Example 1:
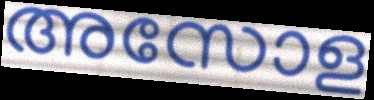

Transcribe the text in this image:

അസോള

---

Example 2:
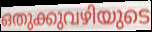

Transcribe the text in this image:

ഒതുക്കുവഴിയുടെ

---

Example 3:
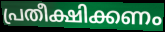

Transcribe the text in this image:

പ്രതീക്ഷിക്കണം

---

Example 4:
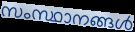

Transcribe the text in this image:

സംസ്ഥാനങ്ങൾ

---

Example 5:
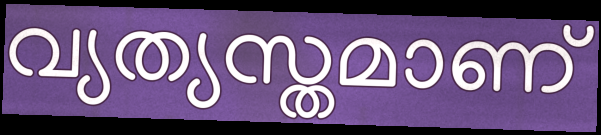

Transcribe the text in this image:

വ്യത്യസ്തമാണ്